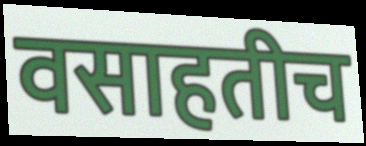
वसाहतीच